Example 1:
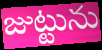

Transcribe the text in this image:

జుట్టును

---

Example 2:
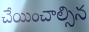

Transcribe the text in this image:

చేయించాల్సిన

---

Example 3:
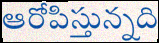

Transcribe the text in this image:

ఆరోపిస్తున్నది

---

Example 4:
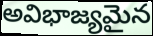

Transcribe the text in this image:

అవిభాజ్యమైన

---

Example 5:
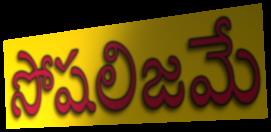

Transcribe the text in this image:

సోషలిజమే